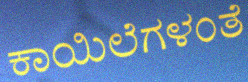
ಕಾಯಿಲೆಗಳಂತೆ